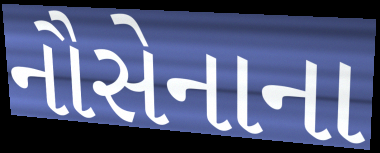
નૌસેનાના